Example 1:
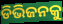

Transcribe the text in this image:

ଡିଭିଜନକୁ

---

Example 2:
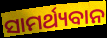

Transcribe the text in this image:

ସାମର୍ଥ୍ୟବାନ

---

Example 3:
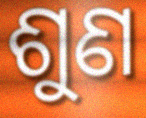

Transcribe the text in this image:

ଶୁଣ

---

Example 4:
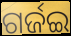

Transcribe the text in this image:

ଗର୍ଜଇ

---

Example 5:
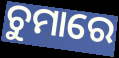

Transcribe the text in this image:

ଚୁମାରେ